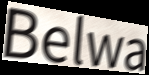
Belwa